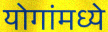
योगांमध्ये